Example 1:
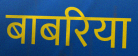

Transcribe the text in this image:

बाबरिया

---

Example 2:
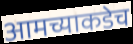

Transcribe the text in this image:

आमच्याकडेच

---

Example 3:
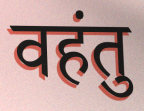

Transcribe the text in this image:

वहंतु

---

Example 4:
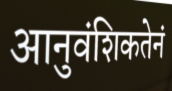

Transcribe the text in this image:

आनुवंशिकतेनं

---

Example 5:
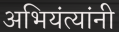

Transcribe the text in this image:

अभियंत्यांनी